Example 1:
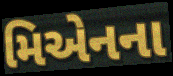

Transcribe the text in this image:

મિએનના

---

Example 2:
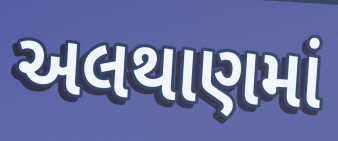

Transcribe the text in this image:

અલથાણમાં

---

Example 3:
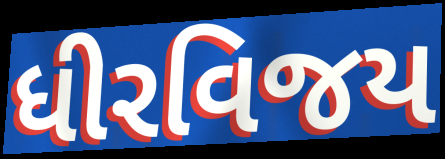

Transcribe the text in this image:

ધીરવિજય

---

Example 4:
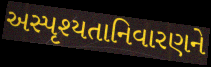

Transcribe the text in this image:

અસ્પૃશ્યતાનિવારણને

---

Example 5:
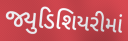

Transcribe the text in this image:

જ્યુડિશિયરીમાં